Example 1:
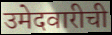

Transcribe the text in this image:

उमेदवारीची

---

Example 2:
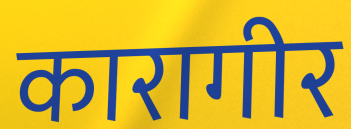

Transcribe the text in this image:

कारागीर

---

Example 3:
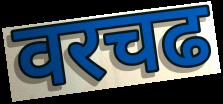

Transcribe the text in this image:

वरचढ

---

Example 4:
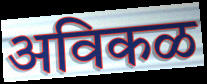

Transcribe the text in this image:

अविकळ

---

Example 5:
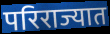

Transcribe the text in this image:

परिराज्यात